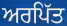
ਅਰਪਿੱਤ